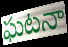
ఘటనా